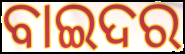
ବାଇଦର